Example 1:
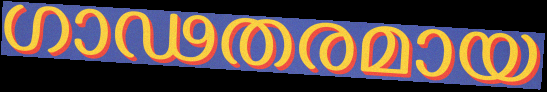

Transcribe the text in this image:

ഗാഢതരമായ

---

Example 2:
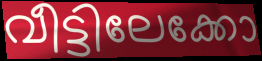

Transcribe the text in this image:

വീട്ടിലേക്കോ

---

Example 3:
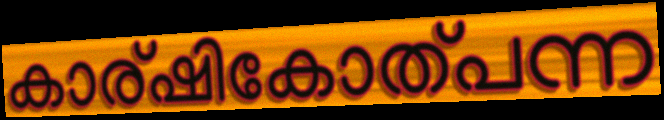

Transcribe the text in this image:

കാര്ഷികോത്പന്ന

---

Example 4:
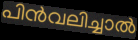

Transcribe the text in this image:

പിൻവലിച്ചാൽ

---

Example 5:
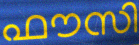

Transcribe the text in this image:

ഫൗസി